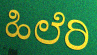
ಹಿಲೆರಿ